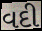
વદી